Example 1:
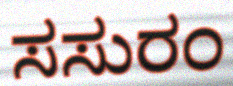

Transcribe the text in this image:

ಸಸುರಂ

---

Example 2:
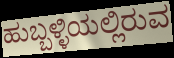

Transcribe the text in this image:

ಹುಬ್ಬಳ್ಳಿಯಲ್ಲಿರುವ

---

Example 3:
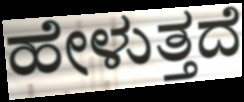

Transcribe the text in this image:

ಹೇಳುತ್ತದೆ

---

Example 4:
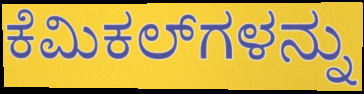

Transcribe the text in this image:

ಕೆಮಿಕಲ್‌ಗಳನ್ನು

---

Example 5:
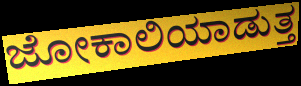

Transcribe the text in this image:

ಜೋಕಾಲಿಯಾಡುತ್ತ